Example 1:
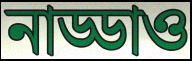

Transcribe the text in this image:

নাড্ডাও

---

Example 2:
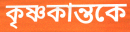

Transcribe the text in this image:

কৃষ্ণকান্তকে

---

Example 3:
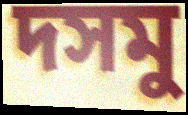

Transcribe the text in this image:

দসমু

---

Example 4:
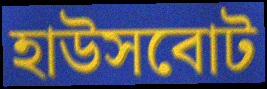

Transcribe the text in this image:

হাউসবোট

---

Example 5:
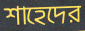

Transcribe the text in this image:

শাহেদের